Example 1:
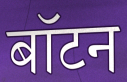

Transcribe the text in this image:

बॉटन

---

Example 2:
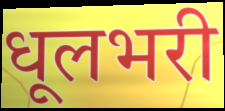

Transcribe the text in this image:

धूलभरी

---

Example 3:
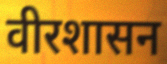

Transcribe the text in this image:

वीरशासन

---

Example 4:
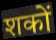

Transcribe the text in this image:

शकों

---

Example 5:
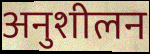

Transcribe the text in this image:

अनुशीलन